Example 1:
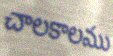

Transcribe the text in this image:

చాలకాలము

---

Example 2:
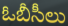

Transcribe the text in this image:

ఓబీసీలు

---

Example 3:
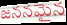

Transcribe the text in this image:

జననమైన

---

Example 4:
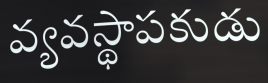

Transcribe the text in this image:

వ్యవస్థాపకుడు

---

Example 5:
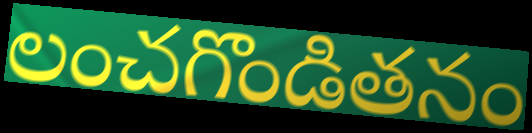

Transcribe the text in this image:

లంచగొండితనం